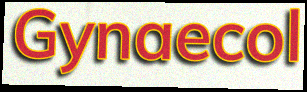
Gynaecol